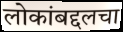
लोकांबद्दलचा